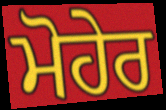
ਮੋਹੇਰ